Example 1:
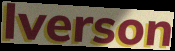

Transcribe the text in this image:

Iverson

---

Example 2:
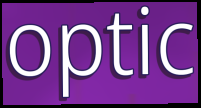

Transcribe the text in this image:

optic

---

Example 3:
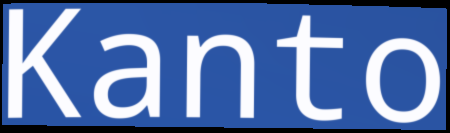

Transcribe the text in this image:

Kanto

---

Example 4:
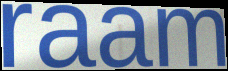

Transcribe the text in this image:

raam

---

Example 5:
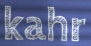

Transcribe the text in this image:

kahr